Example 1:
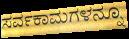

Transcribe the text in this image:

ಸರ್ವಕಾಮಗಳನ್ನೂ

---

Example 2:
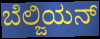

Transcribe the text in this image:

ಬೆಲ್ಜಿಯನ್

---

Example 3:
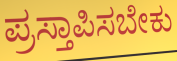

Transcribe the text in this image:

ಪ್ರಸ್ತಾಪಿಸಬೇಕು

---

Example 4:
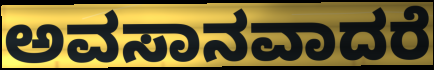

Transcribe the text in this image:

ಅವಸಾನವಾದರೆ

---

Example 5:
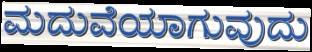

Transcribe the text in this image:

ಮದುವೆಯಾಗುವುದು